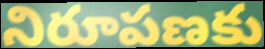
నిరూపణకు